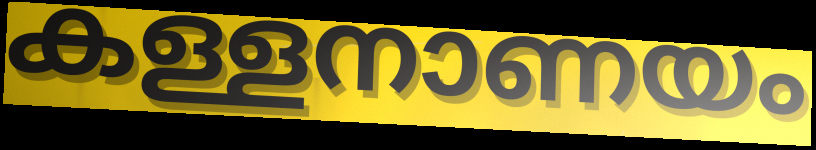
കള്ളനാണയം